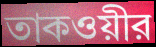
তাকওয়ীর